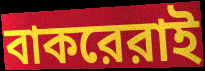
বাকরেরাই